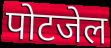
पोटजेल